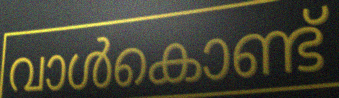
വാൾകൊണ്ട്